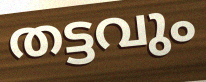
തട്ടവും